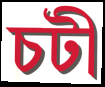
চটী